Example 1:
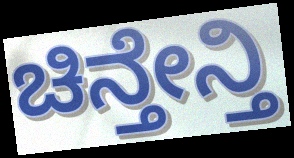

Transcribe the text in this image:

ಚಿನ್ತೇನ್ತಿ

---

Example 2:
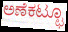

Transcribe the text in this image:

ಅಣೆಕಟ್ಟೂ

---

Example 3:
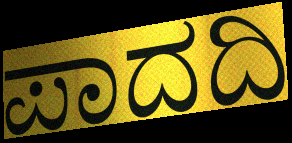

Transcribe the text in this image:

ಪಾದದಿ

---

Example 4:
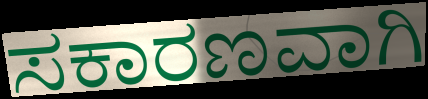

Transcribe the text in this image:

ಸಕಾರಣವಾಗಿ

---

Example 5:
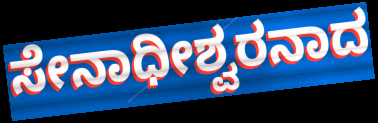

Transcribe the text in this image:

ಸೇನಾಧೀಶ್ವರನಾದ